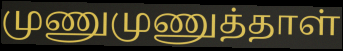
முணுமுணுத்தாள்